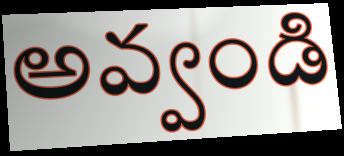
అవ్వండి